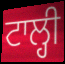
ਟਾਲ੍ਹੀ